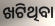
ଖଟିଥିବା